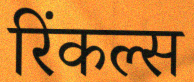
रिंकल्स